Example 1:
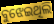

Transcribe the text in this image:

ବୁଝେଇଥିଲି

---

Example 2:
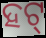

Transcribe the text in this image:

ହଟ୍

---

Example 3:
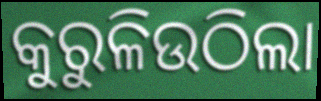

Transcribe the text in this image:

କୁରୁଳିଉଠିଲା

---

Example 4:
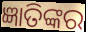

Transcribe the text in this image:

ଜ୍ଞାତିଙ୍କର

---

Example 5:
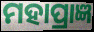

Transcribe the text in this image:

ମହାପ୍ରାଜ୍ଞ